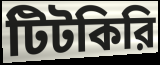
টিটকিরি